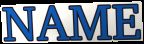
NAME